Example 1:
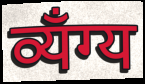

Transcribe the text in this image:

व्यँग्य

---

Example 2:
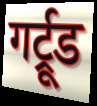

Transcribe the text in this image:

गर्ट्रूड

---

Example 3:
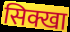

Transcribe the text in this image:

सिक्खा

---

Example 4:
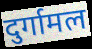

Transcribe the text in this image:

दुर्गामल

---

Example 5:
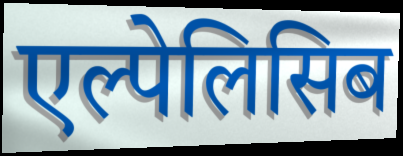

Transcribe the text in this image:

एल्पेलिसिब